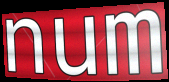
num